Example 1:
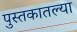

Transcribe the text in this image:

पुस्तकातल्या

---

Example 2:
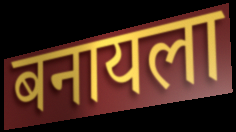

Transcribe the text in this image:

बनायला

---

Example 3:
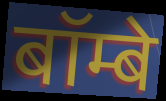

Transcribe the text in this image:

बॉम्बे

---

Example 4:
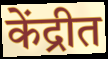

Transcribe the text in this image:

केंद्रीत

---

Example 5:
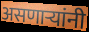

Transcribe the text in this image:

असणाऱ्यांनी